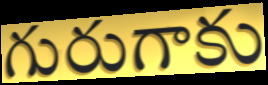
గురుగాకు